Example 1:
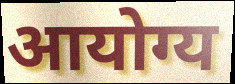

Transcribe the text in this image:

आयोग्य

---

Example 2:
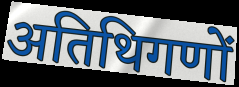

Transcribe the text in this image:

अतिथिगणों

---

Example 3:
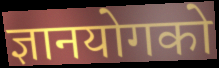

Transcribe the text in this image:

ज्ञानयोगको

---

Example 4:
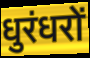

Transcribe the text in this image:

धुरंधरों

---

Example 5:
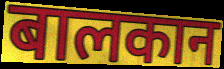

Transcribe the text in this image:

बालकान